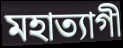
মহাত্যাগী